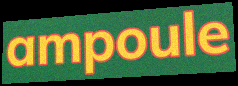
ampoule